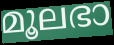
മൂലഭാ